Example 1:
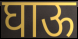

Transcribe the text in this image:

घाऊ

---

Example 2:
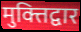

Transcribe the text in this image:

मुक्तिद्वार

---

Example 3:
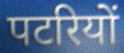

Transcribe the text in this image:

पटरियों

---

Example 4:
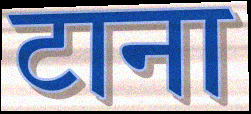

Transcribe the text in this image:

टाना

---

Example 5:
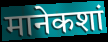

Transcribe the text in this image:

मानेकशां